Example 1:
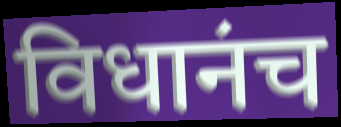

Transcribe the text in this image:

विधानंच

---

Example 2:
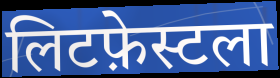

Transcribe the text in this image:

लिटफ़ेस्टला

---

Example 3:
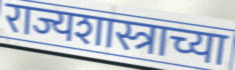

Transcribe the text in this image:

राज्यशास्त्राच्या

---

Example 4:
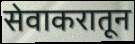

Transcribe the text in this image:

सेवाकरातून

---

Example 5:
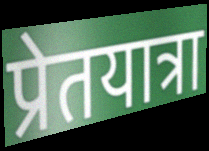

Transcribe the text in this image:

प्रेतयात्रा